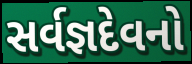
સર્વજ્ઞદેવનો